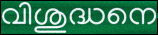
വിശുദ്ധനെ